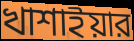
খাশাইয়ার